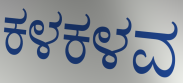
ಕಳಕಳವ